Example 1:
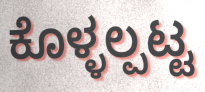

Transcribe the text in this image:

ಕೊಳ್ಳಲ್ಪಟ್ಟ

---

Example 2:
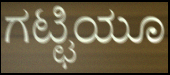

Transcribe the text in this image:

ಗಟ್ಟಿಯೂ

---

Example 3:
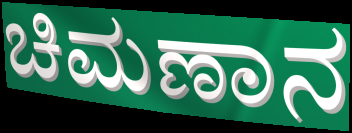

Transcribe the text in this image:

ಚಿಮಣಾನ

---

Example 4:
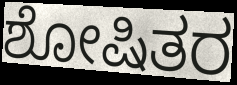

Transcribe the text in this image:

ಶೋಷಿತರ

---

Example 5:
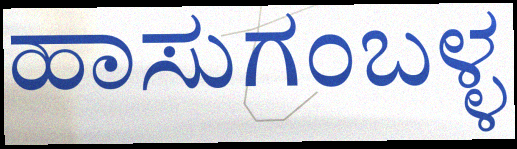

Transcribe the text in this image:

ಹಾಸುಗಂಬಳ್ಳ